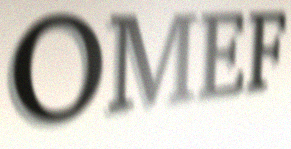
OMEF